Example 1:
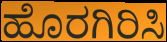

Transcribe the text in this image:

ಹೊರಗಿರಿಸಿ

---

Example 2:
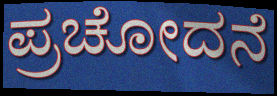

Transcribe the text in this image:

ಪ್ರಚೋದನೆ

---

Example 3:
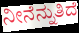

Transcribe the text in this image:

ನೀನೆನ್ನುತಿದೆ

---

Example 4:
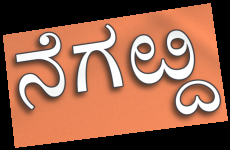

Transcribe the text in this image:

ನೆಗೞ್ದ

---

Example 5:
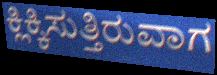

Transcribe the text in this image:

ಕ್ಲಿಕ್ಕಿಸುತ್ತಿರುವಾಗ